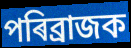
পৰিব্ৰাজক